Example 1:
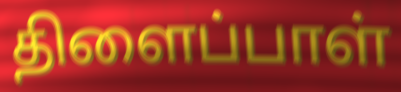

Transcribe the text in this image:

திளைப்பாள்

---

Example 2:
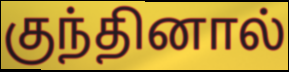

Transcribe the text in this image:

குந்தினால்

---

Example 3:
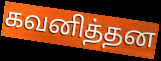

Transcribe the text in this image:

கவனித்தன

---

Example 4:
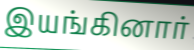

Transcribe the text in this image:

இயங்கினார்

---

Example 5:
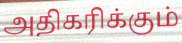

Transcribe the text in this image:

அதிகரிக்கும்